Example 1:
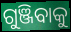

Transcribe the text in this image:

ଗୁଞ୍ଜିବାକୁ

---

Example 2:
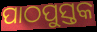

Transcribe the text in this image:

ପାଠପୁସ୍ତକ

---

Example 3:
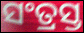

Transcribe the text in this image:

ସଂତ୍ରସ୍ତ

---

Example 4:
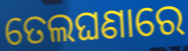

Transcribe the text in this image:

ତେଲଘଣାରେ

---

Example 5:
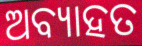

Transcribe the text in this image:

ଅବ୍ୟାହତ